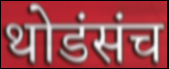
थोडंसंच